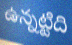
ఉన్నట్టిది